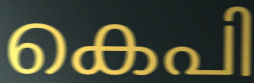
കെപി